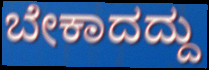
ಬೇಕಾದದ್ದು